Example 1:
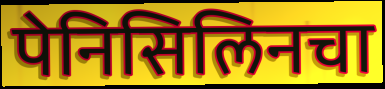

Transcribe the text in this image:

पेनिसिलिनचा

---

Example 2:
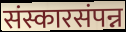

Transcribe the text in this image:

संस्कारसंपन्न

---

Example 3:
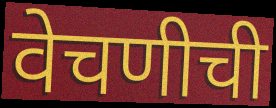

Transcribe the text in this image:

वेचणीची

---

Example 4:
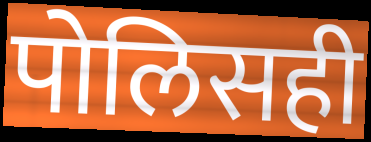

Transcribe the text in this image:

पोलिसही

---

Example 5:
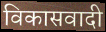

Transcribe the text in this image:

विकासवादी